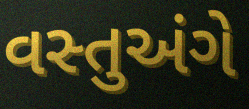
વસ્તુઅંગે